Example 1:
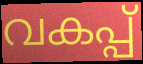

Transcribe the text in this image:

വകപ്പ്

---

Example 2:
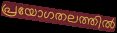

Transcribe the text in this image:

പ്രയോഗതലത്തിൽ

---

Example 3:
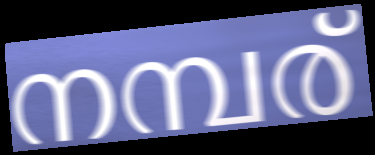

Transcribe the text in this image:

നമ്പര്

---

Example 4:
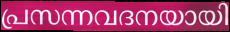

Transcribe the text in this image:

പ്രസന്നവദനയായി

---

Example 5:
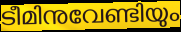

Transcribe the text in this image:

ടീമിനുവേണ്ടിയും